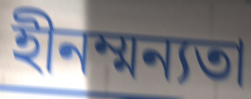
হীনম্মন্যতা